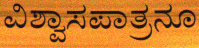
ವಿಶ್ವಾಸಪಾತ್ರನೂ